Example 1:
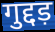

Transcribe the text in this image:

गुद्दड़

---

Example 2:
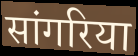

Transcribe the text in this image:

सांगरिया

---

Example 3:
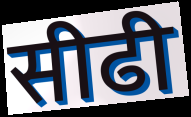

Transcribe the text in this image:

सीढी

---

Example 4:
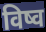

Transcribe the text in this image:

विष्व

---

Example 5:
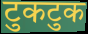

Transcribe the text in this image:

टुकटुक